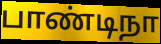
பாண்டிநா